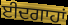
ਈਦਗਾਹਾਂ